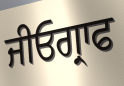
ਜੀਓਗ੍ਰਾਫ